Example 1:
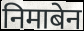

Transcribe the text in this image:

निमाबेन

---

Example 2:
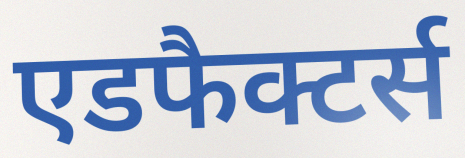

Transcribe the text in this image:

एडफैक्टर्स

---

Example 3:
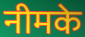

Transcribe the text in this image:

नीमके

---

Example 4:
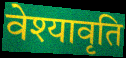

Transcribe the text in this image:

वेश्यावृति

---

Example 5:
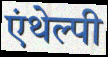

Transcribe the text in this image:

एंथेल्पी